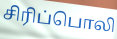
சிரிப்பொலி